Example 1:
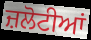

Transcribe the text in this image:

ਜ਼ਲੋਟੀਆਂ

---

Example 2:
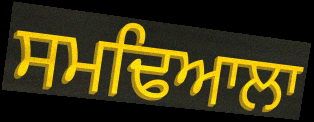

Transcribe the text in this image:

ਸਮਢਿਆਲਾ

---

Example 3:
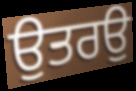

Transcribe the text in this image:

ਉਤਰਉ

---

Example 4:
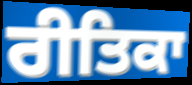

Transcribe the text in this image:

ਰੀਤਿਕਾ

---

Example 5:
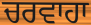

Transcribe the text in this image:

ਚਰਵਾਹਾ